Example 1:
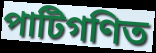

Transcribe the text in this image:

পাটিগণিত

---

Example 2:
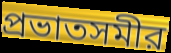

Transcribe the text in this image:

প্রভাতসমীর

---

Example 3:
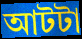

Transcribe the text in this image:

আটটা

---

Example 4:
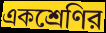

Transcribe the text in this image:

একশ্রেণির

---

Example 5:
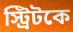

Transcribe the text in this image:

স্ট্রিটকে